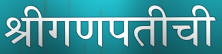
श्रीगणपतीची